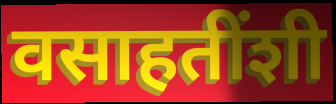
वसाहतींशी